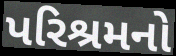
પરિશ્રમનો